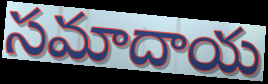
సమాదాయ